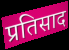
प्रतिसाद